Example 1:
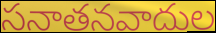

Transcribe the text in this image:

సనాతనవాదుల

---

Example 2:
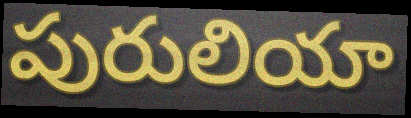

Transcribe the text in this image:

పురులియా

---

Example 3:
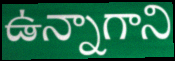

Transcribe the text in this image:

ఉన్నాగాని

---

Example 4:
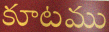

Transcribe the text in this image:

కూటము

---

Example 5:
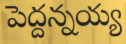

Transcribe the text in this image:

పెద్దన్నయ్య